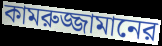
কামরুজ্জামানের